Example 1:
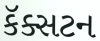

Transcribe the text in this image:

કૅક્સટન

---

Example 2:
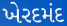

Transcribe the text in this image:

ખેરદમંદ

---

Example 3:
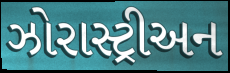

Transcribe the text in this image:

ઝોરાસ્ટ્રીઅન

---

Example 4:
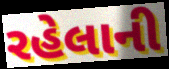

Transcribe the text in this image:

રહેલાની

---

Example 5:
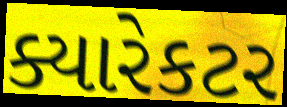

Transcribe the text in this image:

ક્યારેકટર